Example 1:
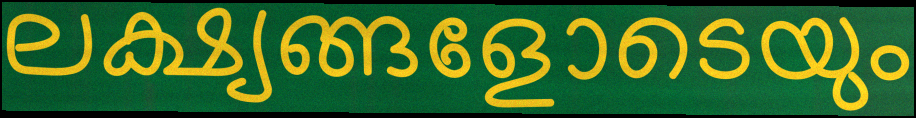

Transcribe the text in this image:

ലക്ഷ്യങ്ങളോടെയും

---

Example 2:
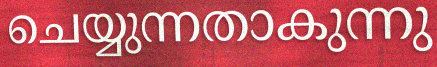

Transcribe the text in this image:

ചെയ്യുന്നതാകുന്നു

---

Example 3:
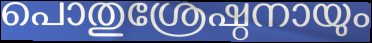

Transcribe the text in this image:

പൊതുശ്രേഷ്ഠനായും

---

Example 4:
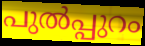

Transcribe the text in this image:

പുൽപ്പുറം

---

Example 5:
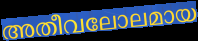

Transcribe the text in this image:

അതീവലോലമായ